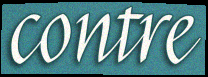
contre